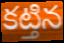
కట్తిన